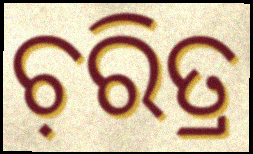
ଚ଼ରିତ୍ର